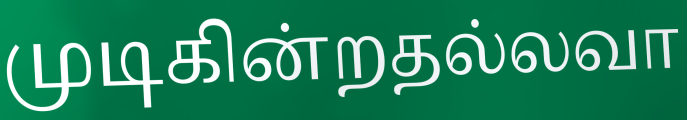
முடிகின்றதல்லவா